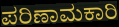
ಪರಿಣಾಮಕಾರಿ